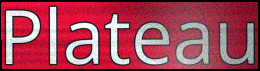
Plateau